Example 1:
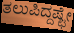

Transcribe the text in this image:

ತಲುಪಿದ್ದಷ್ಟೇ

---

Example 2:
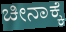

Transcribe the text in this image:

ಚೀನಾಕ್ಕೆ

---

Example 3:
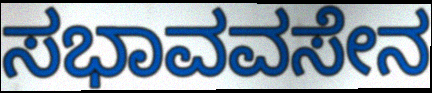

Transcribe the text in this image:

ಸಭಾವವಸೇನ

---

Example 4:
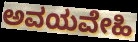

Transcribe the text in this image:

ಅವಯವೇಹಿ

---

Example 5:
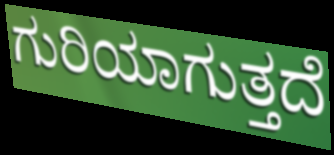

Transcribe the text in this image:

ಗುರಿಯಾಗುತ್ತದೆ